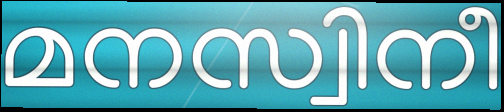
മനസ്വിനീ